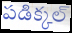
పడిక్కల్